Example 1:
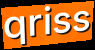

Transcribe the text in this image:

qriss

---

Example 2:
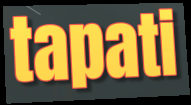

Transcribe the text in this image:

tapati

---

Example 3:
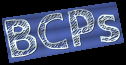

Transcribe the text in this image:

BCPs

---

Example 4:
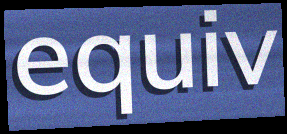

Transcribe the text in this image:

equiv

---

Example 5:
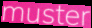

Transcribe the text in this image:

muster